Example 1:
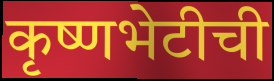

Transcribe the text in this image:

कृष्णभेटीची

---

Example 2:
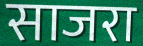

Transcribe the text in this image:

साजरा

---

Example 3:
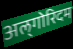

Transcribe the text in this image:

अल्गोरिदम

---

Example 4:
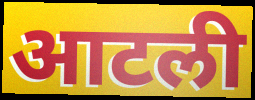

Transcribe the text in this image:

आटली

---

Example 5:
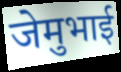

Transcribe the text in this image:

जेमुभाई